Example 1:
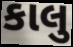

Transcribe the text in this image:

કાલુ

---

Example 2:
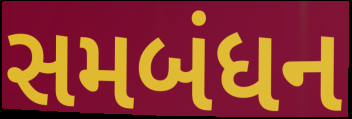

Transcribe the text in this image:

સમબંધન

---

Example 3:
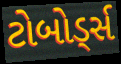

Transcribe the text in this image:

ટોબોર્ડ્સ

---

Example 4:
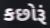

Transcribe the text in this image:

કછોરૂં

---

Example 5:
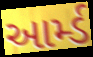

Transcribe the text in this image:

આર્મ્ડ